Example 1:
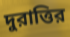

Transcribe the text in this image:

দুরাত্তির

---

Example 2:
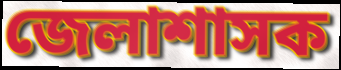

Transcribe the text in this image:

জেলাশাসক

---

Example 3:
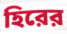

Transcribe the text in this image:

হিরের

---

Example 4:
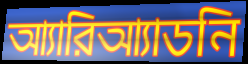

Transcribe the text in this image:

আ্যারিআ্যাডনি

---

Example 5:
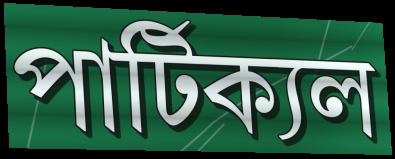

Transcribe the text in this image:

পার্টিক্যল